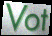
Vot